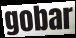
gobar